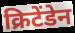
क्रिटेंडेन